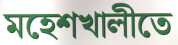
মহেশখালীতে